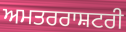
ਅਮਤਰਰਾਸ਼ਟਰੀ